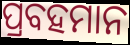
ପ୍ରବହମାନ